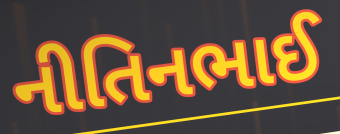
નીતિનભાઈ